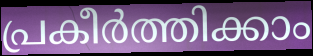
പ്രകീർത്തിക്കാം